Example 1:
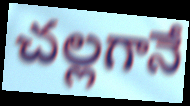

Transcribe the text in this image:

చల్లగానే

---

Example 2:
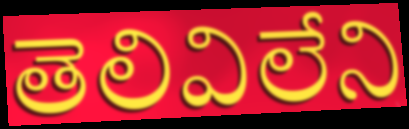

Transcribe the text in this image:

తెలివిలేని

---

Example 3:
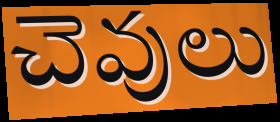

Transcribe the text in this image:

చెవులు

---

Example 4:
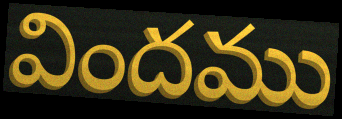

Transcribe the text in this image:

విందము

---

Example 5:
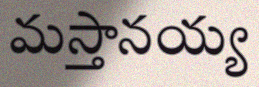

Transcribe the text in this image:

మస్తానయ్య